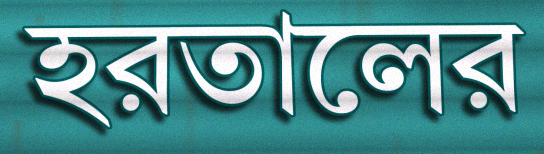
হরতালের